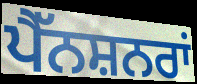
ਪੈੱਨਸ਼ਨਰਾਂ